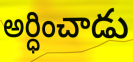
అర్ధించాడు